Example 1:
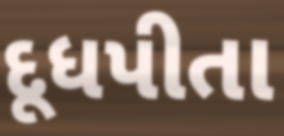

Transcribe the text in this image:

દૂધપીતા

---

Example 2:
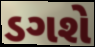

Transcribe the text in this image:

ડગશે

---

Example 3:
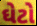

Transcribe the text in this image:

ઘેટો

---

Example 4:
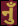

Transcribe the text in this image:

નુઁ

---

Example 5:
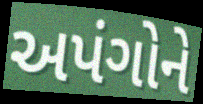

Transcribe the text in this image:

અપંગોને